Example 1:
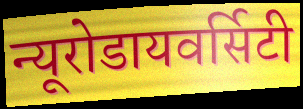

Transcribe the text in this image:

न्यूरोडायवर्सिटी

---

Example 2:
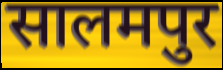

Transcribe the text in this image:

सालमपुर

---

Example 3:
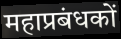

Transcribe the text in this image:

महाप्रबंधकों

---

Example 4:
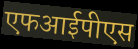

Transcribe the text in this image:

एफआईपीएस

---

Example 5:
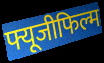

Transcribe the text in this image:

फ्यूजीफिल्म